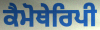
ਕੈਮੋਥੇਰਿਪੀ